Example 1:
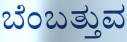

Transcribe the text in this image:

ಬೆಂಬತ್ತುವ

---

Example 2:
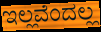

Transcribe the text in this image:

ಇಲ್ಲವೆಂದಲ್ಲ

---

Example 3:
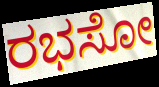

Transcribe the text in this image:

ರಭಸೋ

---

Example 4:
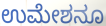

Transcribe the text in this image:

ಉಮೇಶನೂ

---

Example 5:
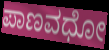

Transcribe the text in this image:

ಪಾಣವಧೋ